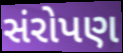
સંરોપણ